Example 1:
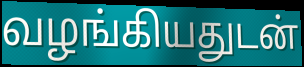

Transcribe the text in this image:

வழங்கியதுடன்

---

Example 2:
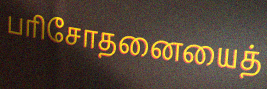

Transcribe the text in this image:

பரிசோதனையைத்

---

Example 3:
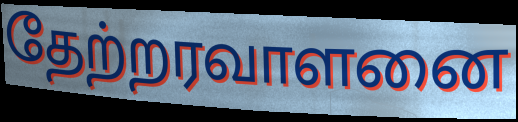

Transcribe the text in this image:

தேற்றரவாளனை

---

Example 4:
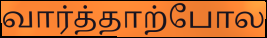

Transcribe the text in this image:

வார்த்தாற்போல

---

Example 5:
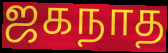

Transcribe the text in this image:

ஜகநாத